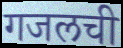
गजलची